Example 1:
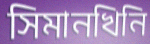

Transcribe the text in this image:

সিমানখিনি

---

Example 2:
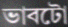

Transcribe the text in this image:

ভাবটো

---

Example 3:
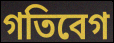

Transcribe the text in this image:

গতিবেগ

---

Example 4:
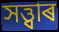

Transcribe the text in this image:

সত্ত্বাৰ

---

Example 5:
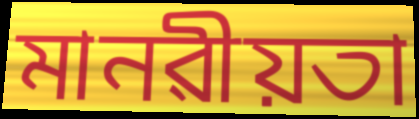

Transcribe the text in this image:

মানৱীয়তা